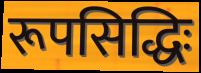
रूपसिद्धिः